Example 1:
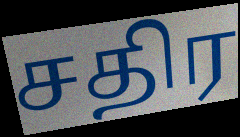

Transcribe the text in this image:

சதிர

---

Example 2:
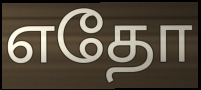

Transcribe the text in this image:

எதோ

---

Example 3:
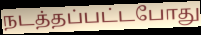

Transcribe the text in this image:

நடத்தப்பட்டபோது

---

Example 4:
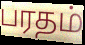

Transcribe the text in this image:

பரதம்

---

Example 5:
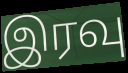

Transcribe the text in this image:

இரவு